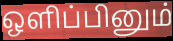
ஒளிப்பினும்